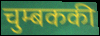
चुम्बककी